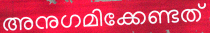
അനുഗമിക്കേണ്ടത്